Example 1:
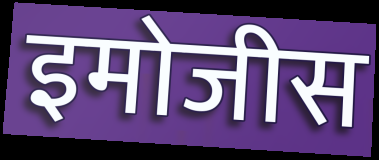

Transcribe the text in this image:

इमोजीस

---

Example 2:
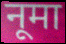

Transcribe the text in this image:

नूमा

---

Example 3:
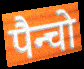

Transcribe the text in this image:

पैन्चो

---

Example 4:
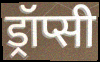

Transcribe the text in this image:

ड्रॉप्सी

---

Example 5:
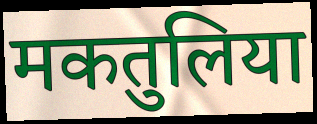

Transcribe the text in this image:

मकतुलिया